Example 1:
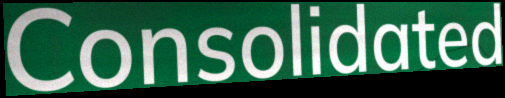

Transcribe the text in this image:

Consolidated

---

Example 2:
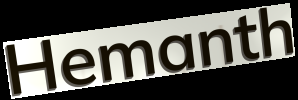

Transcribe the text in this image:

Hemanth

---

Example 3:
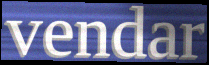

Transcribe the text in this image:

vendar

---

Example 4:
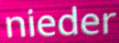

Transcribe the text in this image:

nieder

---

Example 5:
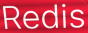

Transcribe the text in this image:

Redis